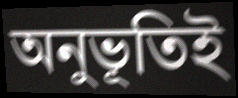
অনুভূতিই